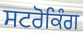
ਸਟਰੋਕਿੰਗ